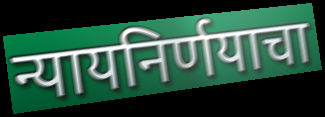
न्यायनिर्णयाचा